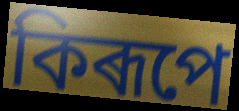
কিৰূপে